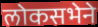
लोकसभेने